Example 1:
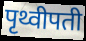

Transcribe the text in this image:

पृथ्वीपती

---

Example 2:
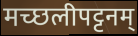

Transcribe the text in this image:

मच्छलीपट्टनम्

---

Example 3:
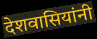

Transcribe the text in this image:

देशवासियांनी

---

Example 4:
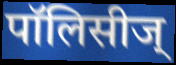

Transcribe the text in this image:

पॉलिसीज्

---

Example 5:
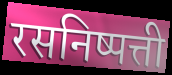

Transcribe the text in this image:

रसनिष्पत्ती